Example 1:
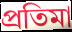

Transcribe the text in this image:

প্রতিমা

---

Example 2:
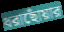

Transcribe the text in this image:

ধরাছোঁয়ার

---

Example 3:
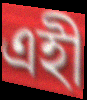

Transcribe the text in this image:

এহী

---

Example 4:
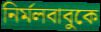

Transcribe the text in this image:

নির্মলবাবুকে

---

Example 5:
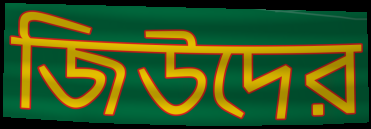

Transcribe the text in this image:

জিউদের